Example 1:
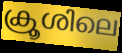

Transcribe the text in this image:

ക്രൂശിലെ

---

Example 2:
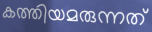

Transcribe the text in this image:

കത്തിയമരുന്നത്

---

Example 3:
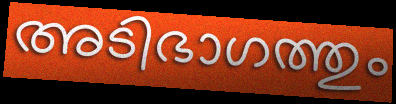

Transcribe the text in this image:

അടിഭാഗത്തും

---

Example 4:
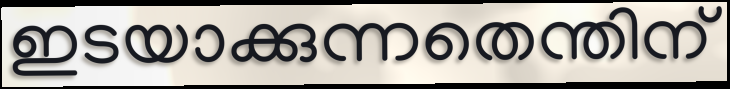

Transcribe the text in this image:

ഇടയാക്കുന്നതെന്തിന്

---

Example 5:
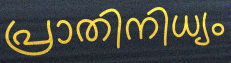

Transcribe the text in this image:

പ്രാതിനിധ്യം